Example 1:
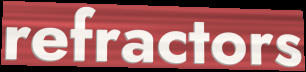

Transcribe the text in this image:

refractors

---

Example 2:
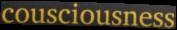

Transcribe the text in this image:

cousciousness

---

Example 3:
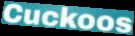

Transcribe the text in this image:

Cuckoos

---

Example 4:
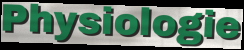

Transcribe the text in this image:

Physiologie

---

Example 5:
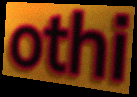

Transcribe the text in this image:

othi